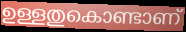
ഉള്ളതുകൊണ്ടാണ്